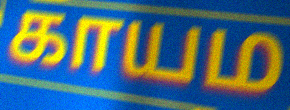
காயம